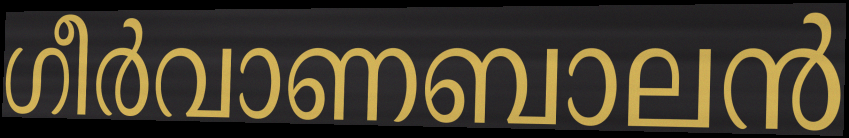
ഗീർവാണബാലൻ